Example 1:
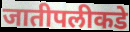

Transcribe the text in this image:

जातीपलीकडे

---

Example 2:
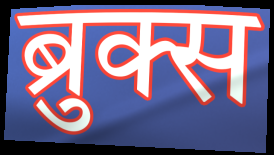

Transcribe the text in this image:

ब्रुक्‍स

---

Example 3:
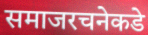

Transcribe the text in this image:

समाजरचनेकडे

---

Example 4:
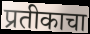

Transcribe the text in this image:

प्रतीकाचा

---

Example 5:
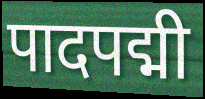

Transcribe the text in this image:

पादपद्मी